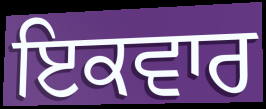
ਇਕਵਾਰ